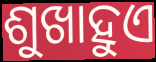
ଶୁଖାହୁଏ